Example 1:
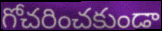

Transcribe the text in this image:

గోచరించకుండా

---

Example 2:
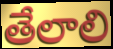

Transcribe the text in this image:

తేలాలి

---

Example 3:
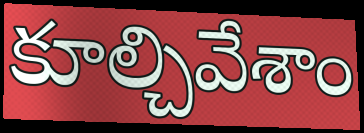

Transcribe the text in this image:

కూల్చివేశాం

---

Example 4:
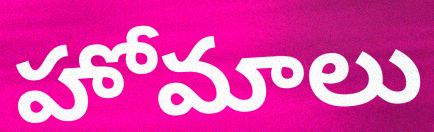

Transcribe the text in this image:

హోమాలు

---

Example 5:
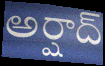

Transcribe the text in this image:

అర్షాద్